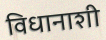
विधानाशी